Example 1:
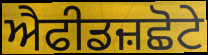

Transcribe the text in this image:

ਐਫੀਡਜ਼ਛੋਟੇ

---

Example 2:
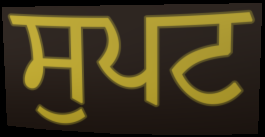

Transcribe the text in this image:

ਸੁਪਟ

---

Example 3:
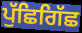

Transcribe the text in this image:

ਪੁੱਛਿਗਿੱਛ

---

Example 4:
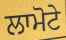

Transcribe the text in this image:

ਲਾਮੋਟੇ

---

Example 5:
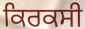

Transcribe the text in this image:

ਕਿਰਕਸੀ